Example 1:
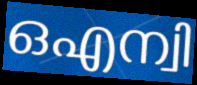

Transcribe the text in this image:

ഒഎന്വി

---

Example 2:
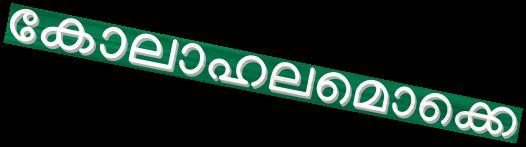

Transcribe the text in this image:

കോലാഹലമൊക്കെ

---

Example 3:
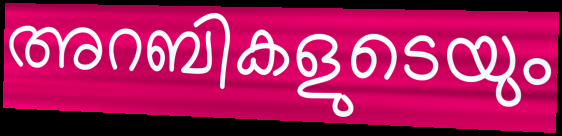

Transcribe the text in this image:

അറബികളുടെയും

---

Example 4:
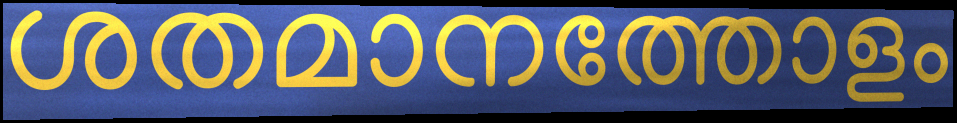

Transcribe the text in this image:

ശതമാനത്തോളം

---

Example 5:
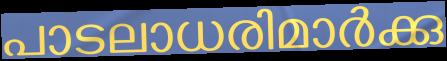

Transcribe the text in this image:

പാടലാധരിമാർക്കു